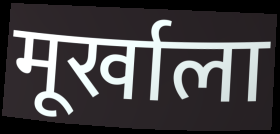
मूर्खाला